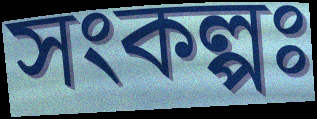
সংকল্পঃ